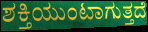
ಶಕ್ತಿಯುಂಟಾಗುತ್ತದೆ